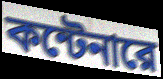
কন্টেনারে